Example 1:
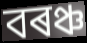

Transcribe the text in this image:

বৰঞ্চ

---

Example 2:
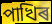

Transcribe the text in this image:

পাখিৰ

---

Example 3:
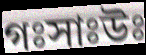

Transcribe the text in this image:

গঃসাঃউঃ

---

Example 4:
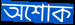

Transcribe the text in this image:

অশোক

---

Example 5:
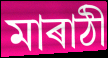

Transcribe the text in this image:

মাৰাঠী